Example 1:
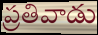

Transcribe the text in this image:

ప్రతివాడు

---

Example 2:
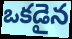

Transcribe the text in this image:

ఒకడైన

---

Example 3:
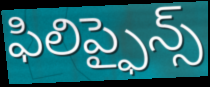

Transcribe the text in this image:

ఫిలిప్ఫైన్స్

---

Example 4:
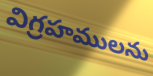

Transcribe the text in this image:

విగ్రహములను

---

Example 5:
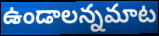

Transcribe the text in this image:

ఉండాలన్నమాట